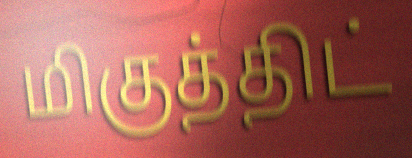
மிகுத்திட்